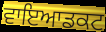
ਵਾਇਆਡਕਟ